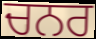
ਚਨਰ